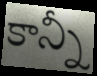
కాన్నీ